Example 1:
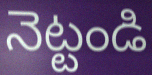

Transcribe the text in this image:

నెట్టండి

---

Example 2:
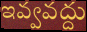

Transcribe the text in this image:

ఇవ్వవద్దు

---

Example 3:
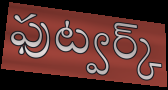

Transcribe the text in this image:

ఫుట్వర్క్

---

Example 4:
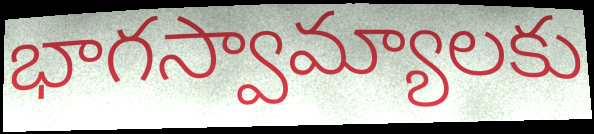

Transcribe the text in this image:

భాగస్వామ్యాలకు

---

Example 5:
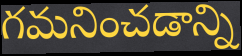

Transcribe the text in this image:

గమనించడాన్ని